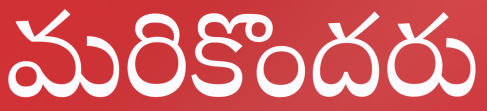
మరికొందరు